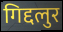
गिद्दलुर